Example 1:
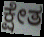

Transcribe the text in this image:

ಕ್ಷೇತ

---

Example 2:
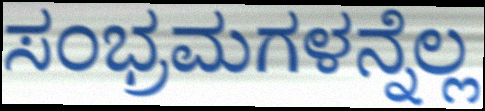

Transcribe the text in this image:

ಸಂಭ್ರಮಗಳನ್ನೆಲ್ಲ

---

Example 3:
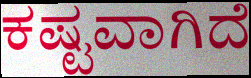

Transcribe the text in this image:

ಕಷ್ಟವಾಗಿದೆ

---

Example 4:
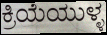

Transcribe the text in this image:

ಕ್ರಿಯೆಯುಳ್ಳ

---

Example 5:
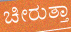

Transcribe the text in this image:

ಚೀರುತ್ತಾ